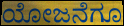
ಯೋಜನೆಗೂ